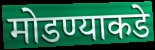
मोडण्याकडे